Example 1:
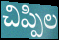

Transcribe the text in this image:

చిప్పిల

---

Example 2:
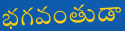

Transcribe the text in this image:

భగవంతుడా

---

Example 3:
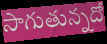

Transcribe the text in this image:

సాగుతున్నదో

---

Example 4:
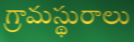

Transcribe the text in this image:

గ్రామస్థురాలు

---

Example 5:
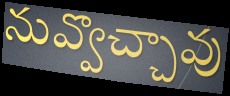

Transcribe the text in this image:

నువ్వొచ్చావు